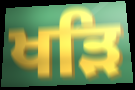
ਖੜਿ